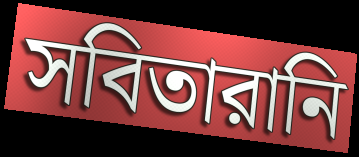
সবিতারানি